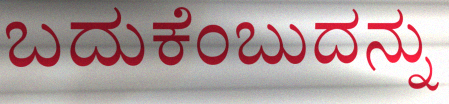
ಬದುಕೆಂಬುದನ್ನು